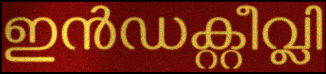
ഇൻഡക്റ്റീവ്ലി